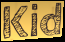
Kid